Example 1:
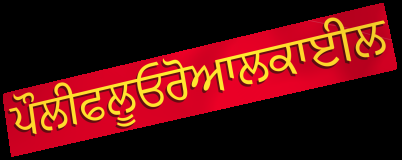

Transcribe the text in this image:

ਪੌਲੀਫਲੂਓਰੋਆਲਕਾਈਲ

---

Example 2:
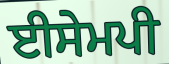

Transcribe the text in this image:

ਈਸੇਮਪੀ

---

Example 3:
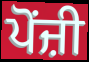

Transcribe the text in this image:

ਪੋਂਜ਼ੀ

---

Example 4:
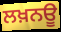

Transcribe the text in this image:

ਲਖ਼ਨਊ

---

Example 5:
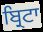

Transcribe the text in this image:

ਬ੍ਰਿਟਾ